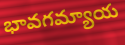
భావగమ్యాయ